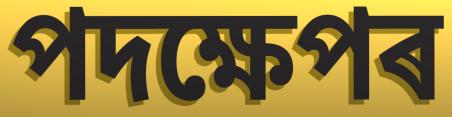
পদক্ষেপৰ